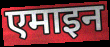
एमाइन